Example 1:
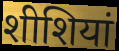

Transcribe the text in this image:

शीशियां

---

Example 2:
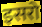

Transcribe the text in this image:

इसरो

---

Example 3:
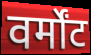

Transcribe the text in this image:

वर्मोंट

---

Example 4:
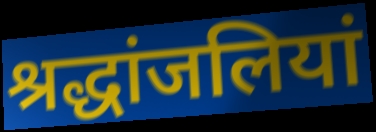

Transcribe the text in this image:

श्रद्धांजलियां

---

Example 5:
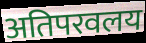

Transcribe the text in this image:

अतिपरवलय